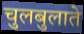
चुलबुलाते